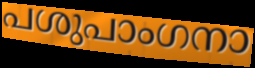
പശുപാംഗനാ